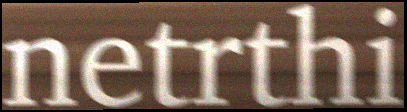
netrthi